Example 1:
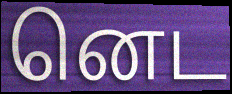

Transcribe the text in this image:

னெட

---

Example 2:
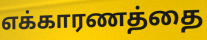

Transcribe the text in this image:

எக்காரணத்தை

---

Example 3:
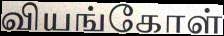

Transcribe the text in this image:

வியங்கோள்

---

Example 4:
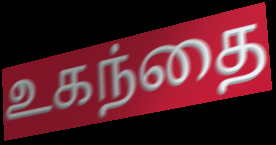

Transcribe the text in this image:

உகந்தை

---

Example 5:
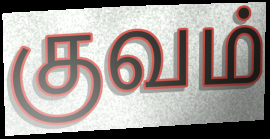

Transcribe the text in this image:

குவம்